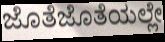
ಜೊತೆಜೊತೆಯಲ್ಲೇ